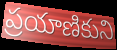
ప్రయాణికుని